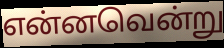
என்னவென்று